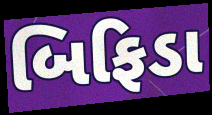
બિફિડા